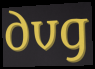
dug